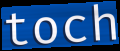
toch